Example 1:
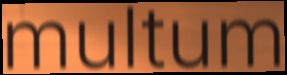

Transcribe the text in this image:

multum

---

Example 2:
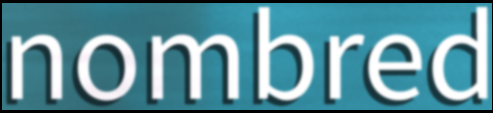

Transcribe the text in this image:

nombred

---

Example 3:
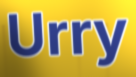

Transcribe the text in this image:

Urry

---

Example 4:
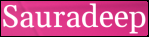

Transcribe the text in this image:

Sauradeep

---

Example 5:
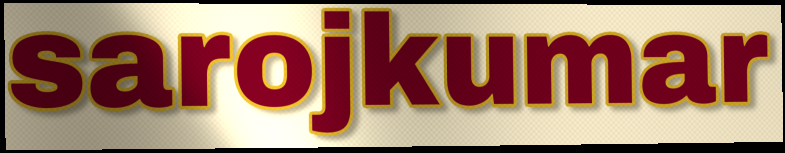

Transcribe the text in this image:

sarojkumar